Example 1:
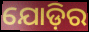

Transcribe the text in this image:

ଯୋଡ଼ିର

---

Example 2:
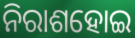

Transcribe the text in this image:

ନିରାଶହୋଇ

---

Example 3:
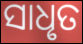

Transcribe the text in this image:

ସାଧୃତ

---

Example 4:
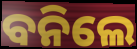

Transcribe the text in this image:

ବନିଲେ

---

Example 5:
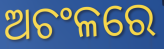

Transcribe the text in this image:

ଅଚଂଳରେ